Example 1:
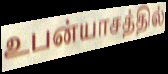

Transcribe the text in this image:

உபன்யாசத்தில்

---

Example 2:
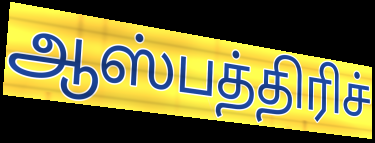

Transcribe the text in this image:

ஆஸ்பத்திரிச்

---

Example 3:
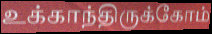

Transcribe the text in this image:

உக்காந்திருக்கோம்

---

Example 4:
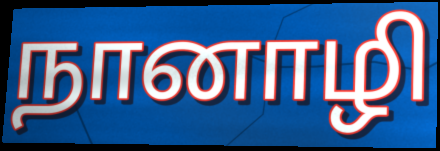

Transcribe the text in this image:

நானாழி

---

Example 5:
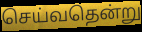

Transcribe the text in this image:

செய்வதென்று